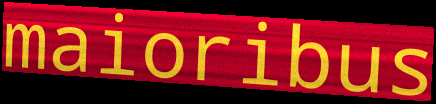
maioribus